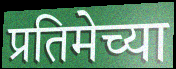
प्रतिमेच्या